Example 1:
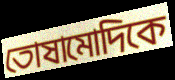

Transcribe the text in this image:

তোষামোদিকে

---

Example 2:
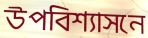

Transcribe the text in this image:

উপবিশ্যাসনে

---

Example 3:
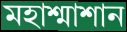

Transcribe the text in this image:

মহাশ্মাশান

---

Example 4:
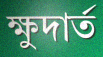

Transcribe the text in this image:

ক্ষুদার্ত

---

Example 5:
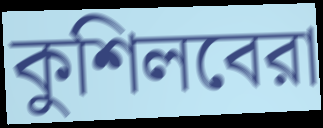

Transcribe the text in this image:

কুশিলবেরা